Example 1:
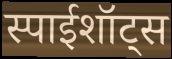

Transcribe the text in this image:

स्पाईशॉट्स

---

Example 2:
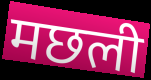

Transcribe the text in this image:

मछली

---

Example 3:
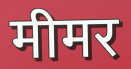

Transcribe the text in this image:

मीमर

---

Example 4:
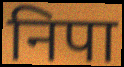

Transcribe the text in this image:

निपा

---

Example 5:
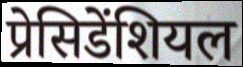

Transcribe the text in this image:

प्रेसिडेंशियल